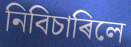
নিবিচাৰিলে